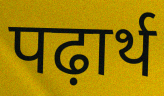
पढ़ार्थ